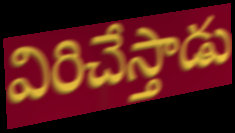
విరిచేస్తాడు